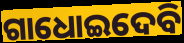
ଗାଧୋଇଦେବି